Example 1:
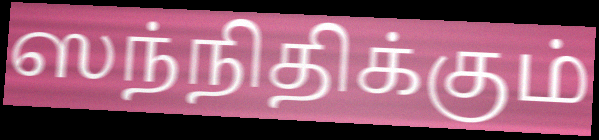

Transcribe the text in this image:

ஸந்நிதிக்கும்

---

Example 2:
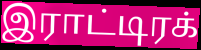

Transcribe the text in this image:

இராட்டிரக்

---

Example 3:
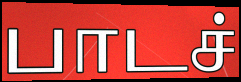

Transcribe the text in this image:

பாடச்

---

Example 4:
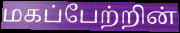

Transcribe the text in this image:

மகப்பேற்றின்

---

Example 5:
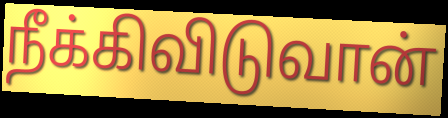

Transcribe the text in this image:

நீக்கிவிடுவான்